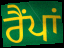
ਰੈਂਪਾਂ